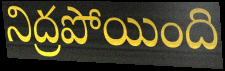
నిద్రపోయింది